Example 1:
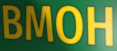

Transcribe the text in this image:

BMOH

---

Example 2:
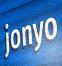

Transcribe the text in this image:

jonyo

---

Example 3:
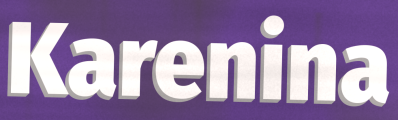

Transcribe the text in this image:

Karenina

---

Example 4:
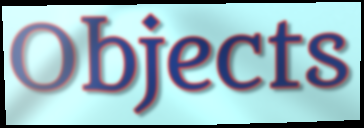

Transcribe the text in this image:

Objects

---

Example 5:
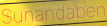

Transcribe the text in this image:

Sunandaben